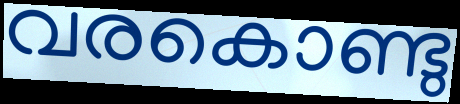
വരകൊണ്ടു